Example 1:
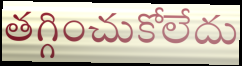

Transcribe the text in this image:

తగ్గించుకోలేదు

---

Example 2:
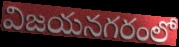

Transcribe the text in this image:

విజయనగరంలో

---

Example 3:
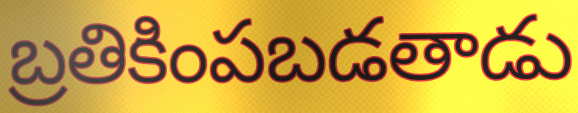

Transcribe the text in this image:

బ్రతికింపబడతాడు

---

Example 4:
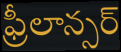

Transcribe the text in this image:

ఫ్రీలాన్సర్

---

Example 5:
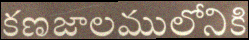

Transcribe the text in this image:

కణజాలములోనికి